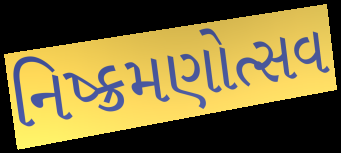
નિષ્ક્રમણોત્સવ